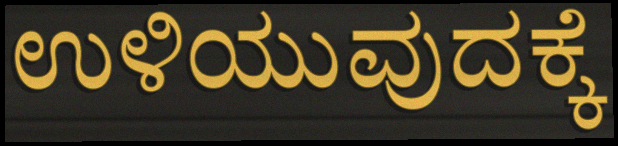
ಉಳಿಯುವುದಕ್ಕೆ